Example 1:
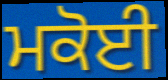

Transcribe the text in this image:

ਮਕੋਈ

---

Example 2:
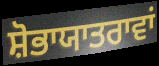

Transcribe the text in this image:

ਸ਼ੋਭਾਯਾਤਰਾਵਾਂ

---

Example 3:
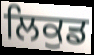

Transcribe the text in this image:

ਲਿਕੁਡ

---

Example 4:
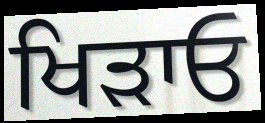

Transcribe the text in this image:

ਖਿੜਾਓ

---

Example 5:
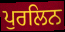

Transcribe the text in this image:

ਪੁਰਲਿਨ